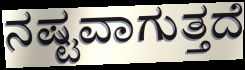
ನಷ್ಟವಾಗುತ್ತದೆ